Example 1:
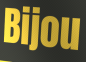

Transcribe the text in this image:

Bijou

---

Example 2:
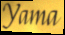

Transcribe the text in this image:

Yama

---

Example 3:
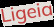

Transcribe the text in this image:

Ligeia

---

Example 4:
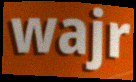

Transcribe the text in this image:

wajr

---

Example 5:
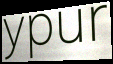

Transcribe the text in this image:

ypur